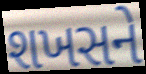
શખસને